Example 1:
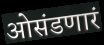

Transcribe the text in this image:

ओसंडणारं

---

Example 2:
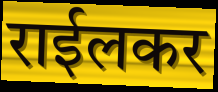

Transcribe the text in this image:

राईलकर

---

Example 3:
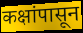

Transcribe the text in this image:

कक्षांपासून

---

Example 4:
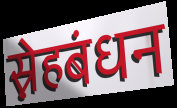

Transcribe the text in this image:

स्नेहबंधन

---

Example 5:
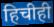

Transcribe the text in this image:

हिचीही